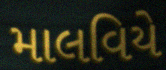
માલવિયે